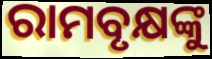
ରାମବୃକ୍ଷଙ୍କୁ